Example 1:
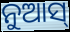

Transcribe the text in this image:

ନୁଆସ୍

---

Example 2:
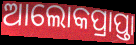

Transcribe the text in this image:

ଆଲୋକପ୍ରାପ୍ତା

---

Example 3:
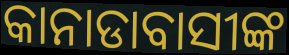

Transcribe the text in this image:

କାନାଡାବାସୀଙ୍କ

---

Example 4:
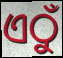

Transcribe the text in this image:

ଏଠୁଁ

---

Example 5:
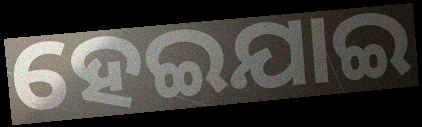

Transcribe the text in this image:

ହେଇଯାଇ